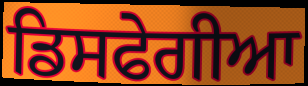
ਡਿਸਫੇਗੀਆ